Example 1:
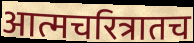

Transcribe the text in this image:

आत्मचरित्रातच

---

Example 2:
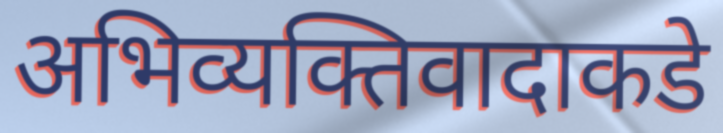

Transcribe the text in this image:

अभिव्यक्तिवादाकडे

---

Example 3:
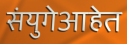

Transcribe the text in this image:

संयुगेआहेत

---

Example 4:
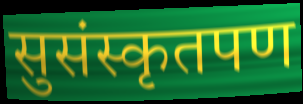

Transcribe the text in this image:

सुसंस्कृतपण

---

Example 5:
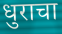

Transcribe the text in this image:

धुराचा